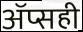
ॲप्सही